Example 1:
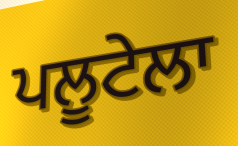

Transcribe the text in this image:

ਪਲੂਟੇਲਾ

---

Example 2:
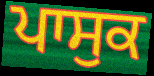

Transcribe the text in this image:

ਪਾਸੁਕ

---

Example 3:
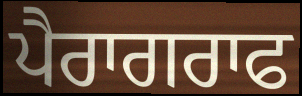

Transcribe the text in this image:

ਪੈਰਾਗਰਾਫ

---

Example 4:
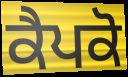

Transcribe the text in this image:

ਕੈਪਕੋ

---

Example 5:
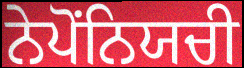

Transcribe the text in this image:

ਨੇਪੋਂਨਿਯਚੀ